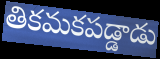
తికమకపడ్డాడు